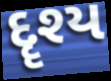
દૄશ્ય